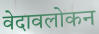
वेदावलोकन